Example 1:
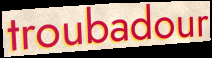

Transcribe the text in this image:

troubadour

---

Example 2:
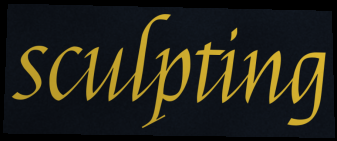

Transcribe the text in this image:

sculpting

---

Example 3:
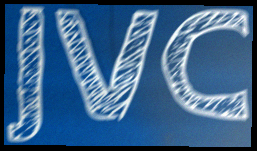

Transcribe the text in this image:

JVC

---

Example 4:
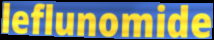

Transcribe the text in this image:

leflunomide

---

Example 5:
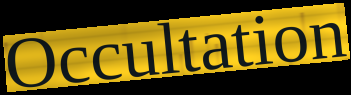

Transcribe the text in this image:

Occultation